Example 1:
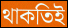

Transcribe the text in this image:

থাকতিই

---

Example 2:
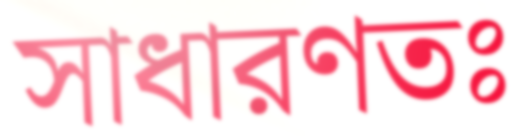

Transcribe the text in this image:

সাধারণতঃ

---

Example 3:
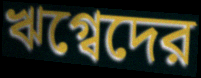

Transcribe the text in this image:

ঋগ্বেদের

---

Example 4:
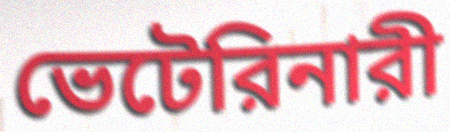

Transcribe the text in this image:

ভেটেরিনারী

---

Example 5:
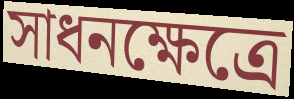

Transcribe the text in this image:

সাধনক্ষেত্রে